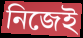
নিজেই